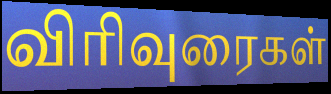
விரிவுரைகள்